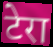
टेरा